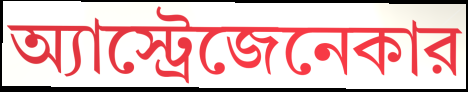
অ্যাস্ট্রেজেনেকার